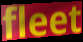
fleet